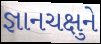
જ્ઞાનચક્ષુને